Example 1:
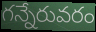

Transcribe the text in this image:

గన్నేరువరం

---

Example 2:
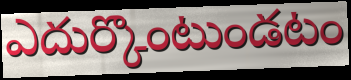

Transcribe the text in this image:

ఎదుర్కొంటుండటం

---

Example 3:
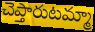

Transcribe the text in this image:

చెప్తారుటమ్మా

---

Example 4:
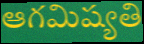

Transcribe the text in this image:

ఆగమిష్యతి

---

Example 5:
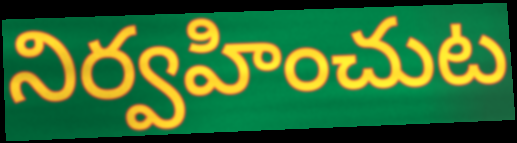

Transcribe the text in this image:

నిర్వహించుట